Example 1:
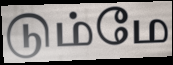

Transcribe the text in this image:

டும்மே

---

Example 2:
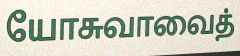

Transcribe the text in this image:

யோசுவாவைத்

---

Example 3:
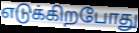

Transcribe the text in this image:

எடுக்கிறபோது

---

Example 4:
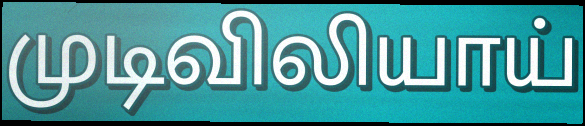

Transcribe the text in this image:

முடிவிலியாய்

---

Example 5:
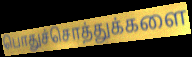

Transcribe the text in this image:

பொதுச்சொத்துக்களை